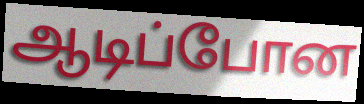
ஆடிப்போன